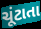
ચૂંટાતા